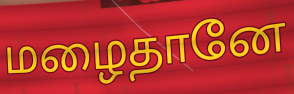
மழைதானே